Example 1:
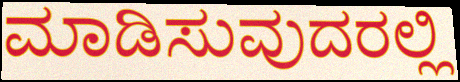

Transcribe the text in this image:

ಮಾಡಿಸುವುದರಲ್ಲಿ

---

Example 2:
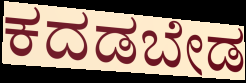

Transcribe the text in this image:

ಕದಡಬೇಡ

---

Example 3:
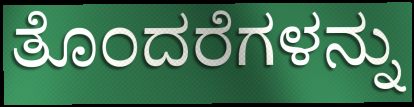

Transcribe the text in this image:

ತೊಂದರೆಗಳನ್ನು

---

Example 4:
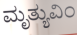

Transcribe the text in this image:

ಮೃತ್ಯುವಿಂ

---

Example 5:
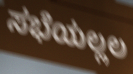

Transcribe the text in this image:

ಸಭೆಯಲ್ಲಲ